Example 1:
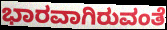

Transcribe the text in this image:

ಭಾರವಾಗಿರುವಂತೆ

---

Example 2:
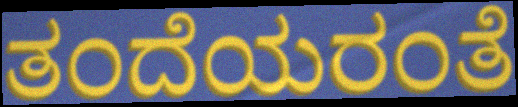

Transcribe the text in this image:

ತಂದೆಯರಂತೆ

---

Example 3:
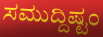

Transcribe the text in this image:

ಸಮುದ್ದಿಷ್ಟಂ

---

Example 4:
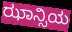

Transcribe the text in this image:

ಝಾನ್ಸಿಯ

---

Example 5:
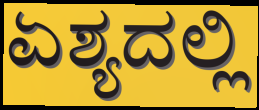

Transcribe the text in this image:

ಏಶ್ಯದಲ್ಲಿ